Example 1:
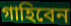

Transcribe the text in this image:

গাহিবেন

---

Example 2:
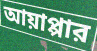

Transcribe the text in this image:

আয়াপ্পার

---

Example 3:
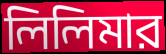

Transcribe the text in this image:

লিলিমার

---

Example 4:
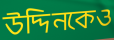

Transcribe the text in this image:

উদ্দিনকেও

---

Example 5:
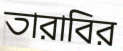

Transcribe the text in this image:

তারাবির